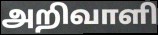
அறிவாளி